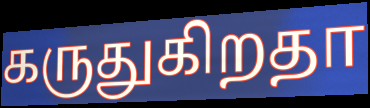
கருதுகிறதா